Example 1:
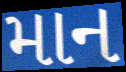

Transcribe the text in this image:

માન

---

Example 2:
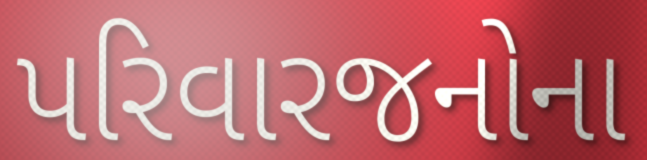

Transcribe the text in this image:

પરિવારજનોના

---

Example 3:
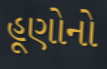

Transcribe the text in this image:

હૂણોનો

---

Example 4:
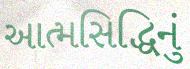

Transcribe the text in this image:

આત્મસિદ્ધિનું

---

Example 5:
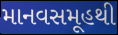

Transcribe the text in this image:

માનવસમૂહથી